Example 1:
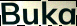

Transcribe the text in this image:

Buka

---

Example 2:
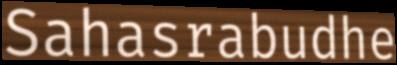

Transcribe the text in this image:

Sahasrabudhe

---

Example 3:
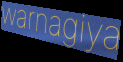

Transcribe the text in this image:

warnagiya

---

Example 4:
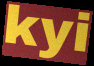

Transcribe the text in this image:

kyi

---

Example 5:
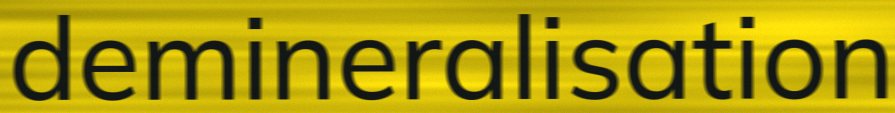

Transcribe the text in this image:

demineralisation